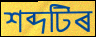
শব্দটিৰ